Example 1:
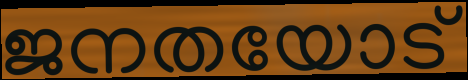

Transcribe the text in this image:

ജനതയോട്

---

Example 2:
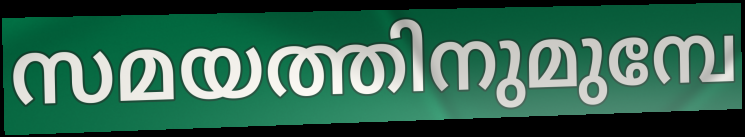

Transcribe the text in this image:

സമയത്തിനുമുമ്പേ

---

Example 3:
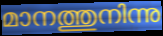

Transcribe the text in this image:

മാനത്തുനിന്നു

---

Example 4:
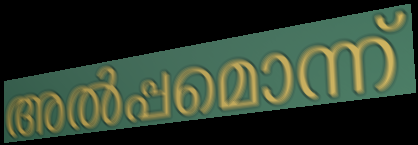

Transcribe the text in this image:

അൽപ്പമൊന്ന്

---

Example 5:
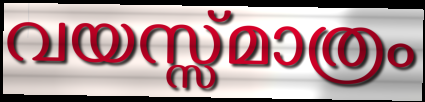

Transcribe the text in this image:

വയസ്സ്മാത്രം